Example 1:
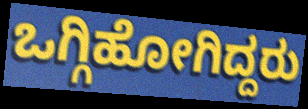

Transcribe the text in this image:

ಒಗ್ಗಿಹೋಗಿದ್ದರು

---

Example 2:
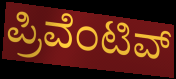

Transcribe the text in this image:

ಪ್ರಿವೆಂಟಿವ್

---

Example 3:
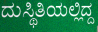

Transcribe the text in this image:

ದುಸ್ಥಿತಿಯಲ್ಲಿದ್ದ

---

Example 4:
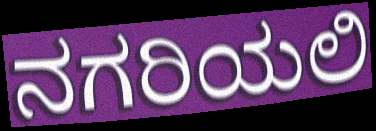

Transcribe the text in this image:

ನಗರಿಯಲಿ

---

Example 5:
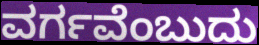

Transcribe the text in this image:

ವರ್ಗವೆಂಬುದು